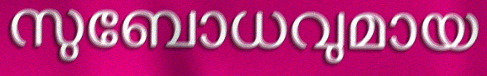
സുബോധവുമായ